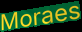
Moraes